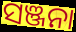
ସଞ୍ଜନା